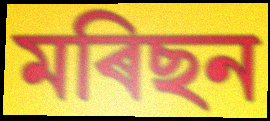
মৰিছন